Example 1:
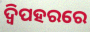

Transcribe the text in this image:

ଦ୍ୱିପହରରେ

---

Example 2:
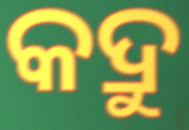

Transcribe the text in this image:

କଦ୍ରୁ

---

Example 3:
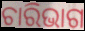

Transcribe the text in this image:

ଚାରିଭାଗ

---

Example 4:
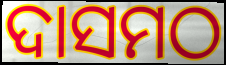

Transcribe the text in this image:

ଦାସମଠ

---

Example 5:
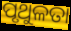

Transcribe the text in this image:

ପୃଥୁଳତା